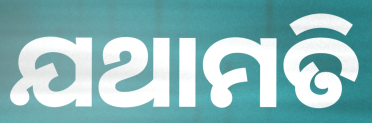
ଯଥାମତି